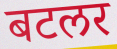
बटलर